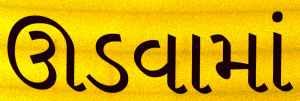
ઊડવામાં